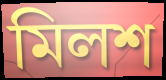
মিলশ